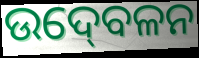
ଉଦ୍‍ବେଳନ